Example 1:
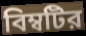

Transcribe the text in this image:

বিম্বটির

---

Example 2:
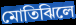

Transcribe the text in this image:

মোতিঝিলে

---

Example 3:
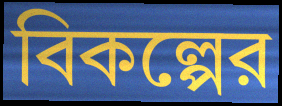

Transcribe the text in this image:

বিকল্পের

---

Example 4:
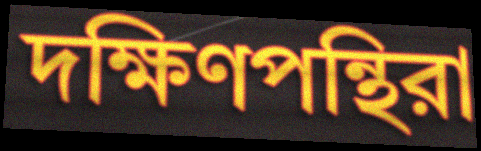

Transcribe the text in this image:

দক্ষিণপন্থিরা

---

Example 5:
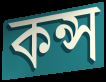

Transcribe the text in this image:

কন্স